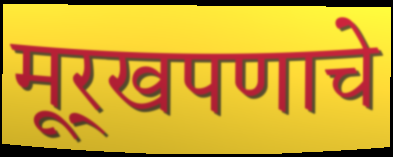
मूर्खपणाचे